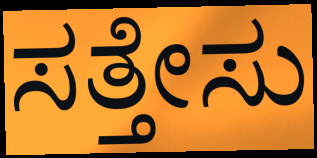
ಸತ್ತೇಸು